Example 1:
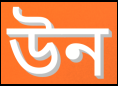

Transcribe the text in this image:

উন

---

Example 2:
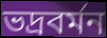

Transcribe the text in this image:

ভদ্রবর্মন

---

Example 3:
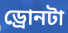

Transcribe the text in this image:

ড্রোনটা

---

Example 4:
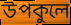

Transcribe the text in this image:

উপকুলে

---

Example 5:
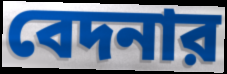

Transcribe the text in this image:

বেদনার